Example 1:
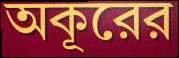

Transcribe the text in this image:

অকূরের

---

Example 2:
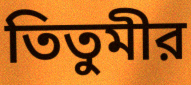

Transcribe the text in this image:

তিতুমীর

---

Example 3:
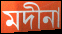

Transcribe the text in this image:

মদীনা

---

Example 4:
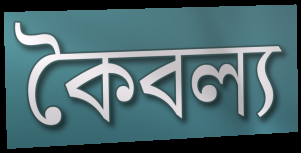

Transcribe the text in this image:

কৈবল্য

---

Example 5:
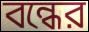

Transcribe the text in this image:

বন্ধের